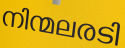
നിന്മലരടി